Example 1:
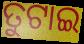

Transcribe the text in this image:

ତୁଟାଇ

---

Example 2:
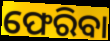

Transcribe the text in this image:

ଫେରିବା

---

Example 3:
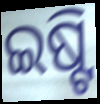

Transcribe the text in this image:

ଇଷ୍ଟି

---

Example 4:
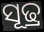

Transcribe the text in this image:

ସୂଢ୍ର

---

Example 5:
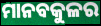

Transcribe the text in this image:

ମାନବକୁଳର